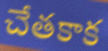
చేతకాక